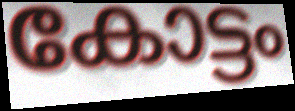
കോട്ടം